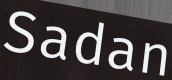
Sadan